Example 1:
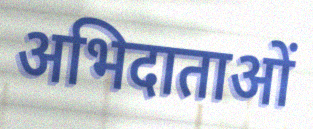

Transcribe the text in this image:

अभिदाताओं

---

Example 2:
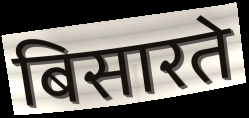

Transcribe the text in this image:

बिसारते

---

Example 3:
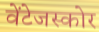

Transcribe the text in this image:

वेंटेजस्कोर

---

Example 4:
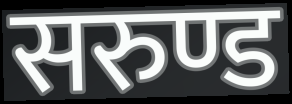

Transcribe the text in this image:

सरुण्ड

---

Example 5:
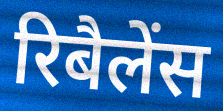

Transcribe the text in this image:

रिबैलेंस